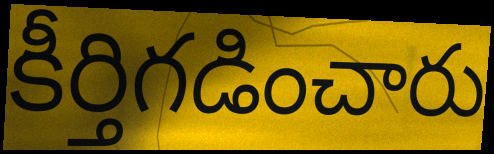
కీర్తిగడించారు